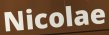
Nicolae